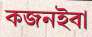
কজনইবা